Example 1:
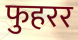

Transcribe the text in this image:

फुहरर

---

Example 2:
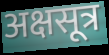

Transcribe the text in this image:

अक्षसूत्र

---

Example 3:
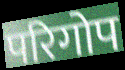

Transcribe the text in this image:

परिगोप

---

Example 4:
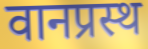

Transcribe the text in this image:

वानप्रस्थ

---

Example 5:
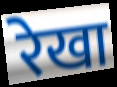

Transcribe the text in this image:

रेखा